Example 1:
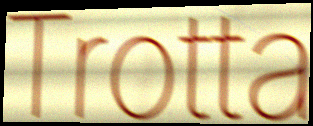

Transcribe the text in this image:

Trotta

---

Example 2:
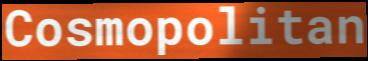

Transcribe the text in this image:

Cosmopolitan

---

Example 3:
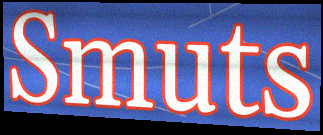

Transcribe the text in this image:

Smuts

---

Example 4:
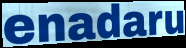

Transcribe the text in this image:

enadaru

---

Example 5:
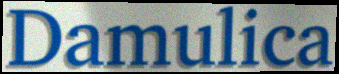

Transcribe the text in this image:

Damulica